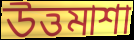
উত্তমাশা